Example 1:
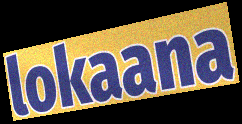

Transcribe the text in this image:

lokaana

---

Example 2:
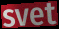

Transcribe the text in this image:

svet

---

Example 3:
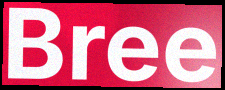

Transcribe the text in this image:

Bree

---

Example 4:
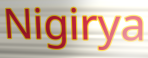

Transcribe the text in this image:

Nigirya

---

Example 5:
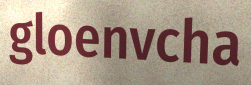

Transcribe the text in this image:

gloenvcha